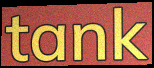
tank